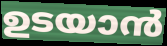
ഉടയാൻ